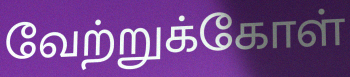
வேற்றுக்கோள்